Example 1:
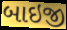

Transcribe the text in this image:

બાઇજી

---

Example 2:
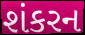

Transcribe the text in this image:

શંકરન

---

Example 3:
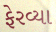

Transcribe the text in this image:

ફેરવ્યા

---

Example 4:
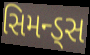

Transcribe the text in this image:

સિમન્ડ્સ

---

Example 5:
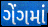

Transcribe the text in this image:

ગેંગમાં